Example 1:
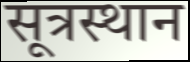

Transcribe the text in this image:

सूत्रस्थान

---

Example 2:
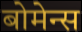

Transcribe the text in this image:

बोमेन्स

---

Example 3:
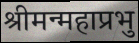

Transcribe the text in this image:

श्रीमन्महाप्रभु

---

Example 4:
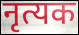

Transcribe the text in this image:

नृत्यक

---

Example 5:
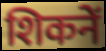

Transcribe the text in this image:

शिकनें